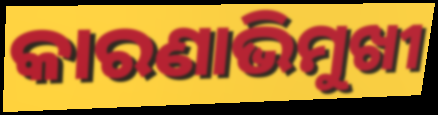
କାରଣାଭିମୁଖୀ